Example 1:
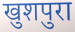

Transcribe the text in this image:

खुशपुरा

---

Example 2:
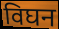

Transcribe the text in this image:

विघन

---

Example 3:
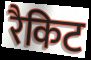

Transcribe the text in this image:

रैकिट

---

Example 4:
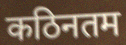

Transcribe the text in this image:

कठिनतम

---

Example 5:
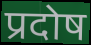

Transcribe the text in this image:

प्रदोष